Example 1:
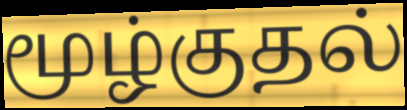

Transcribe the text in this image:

மூழ்குதல்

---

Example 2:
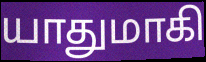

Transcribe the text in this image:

யாதுமாகி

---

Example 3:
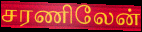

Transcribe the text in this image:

சரணிலேன்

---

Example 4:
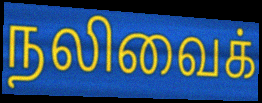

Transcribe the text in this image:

நலிவைக்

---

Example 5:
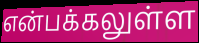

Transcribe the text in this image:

என்பக்கலுள்ள